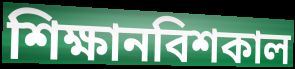
শিক্ষানবিশকাল